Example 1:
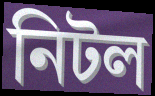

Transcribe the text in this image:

নিটল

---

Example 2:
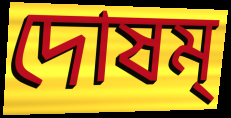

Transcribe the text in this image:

দোষম্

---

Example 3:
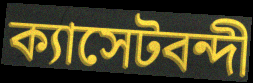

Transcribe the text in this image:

ক্যাসেটবন্দী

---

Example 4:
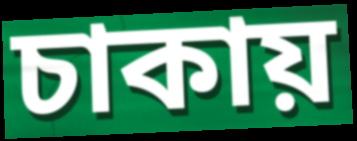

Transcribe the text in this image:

চাকায়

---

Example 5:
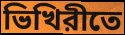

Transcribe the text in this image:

ভিখিরীতে